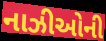
નાઝીઓની